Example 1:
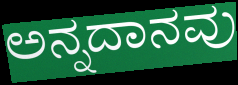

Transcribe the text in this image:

ಅನ್ನದಾನವು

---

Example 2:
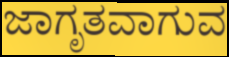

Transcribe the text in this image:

ಜಾಗೃತವಾಗುವ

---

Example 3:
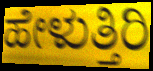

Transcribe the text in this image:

ಹೇಳುತ್ತಿರಿ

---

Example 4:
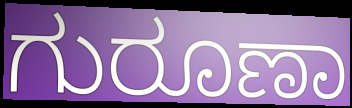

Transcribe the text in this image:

ಗುರೂಣಾ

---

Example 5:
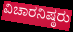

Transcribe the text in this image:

ವಿಚಾರನಿಷ್ಠರು